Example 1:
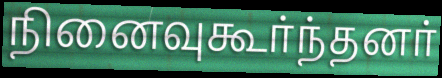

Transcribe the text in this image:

நினைவுகூர்ந்தனர்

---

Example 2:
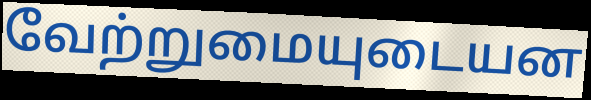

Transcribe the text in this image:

வேற்றுமையுடையன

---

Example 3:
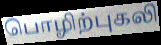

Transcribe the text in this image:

பொழிற்புகலி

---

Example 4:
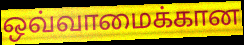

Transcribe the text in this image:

ஒவ்வாமைக்கான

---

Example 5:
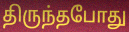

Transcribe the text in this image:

திருந்தபோது